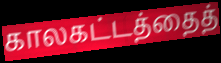
காலகட்டத்தைத்